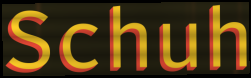
Schuh